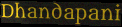
Dhandapani